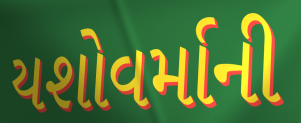
યશોવર્માની